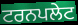
ਟਰਨਪਲੇਟ